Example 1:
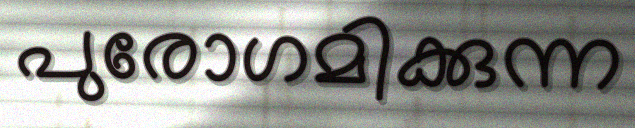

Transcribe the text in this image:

പുരോഗമിക്കുന്ന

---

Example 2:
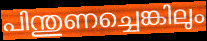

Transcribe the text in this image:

പിന്തുണച്ചെങ്കിലും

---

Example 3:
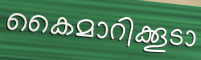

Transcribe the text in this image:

കൈമാറിക്കൂടാ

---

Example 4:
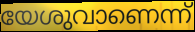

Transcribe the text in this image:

യേശുവാണെന്ന്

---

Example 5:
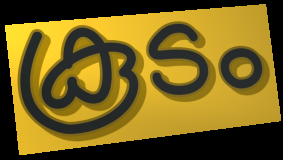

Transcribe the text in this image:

കൂടം